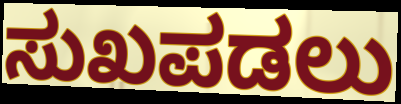
ಸುಖಪಡಲು